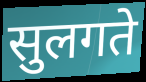
सुलगते